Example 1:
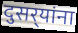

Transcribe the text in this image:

दुसर्‍यांना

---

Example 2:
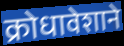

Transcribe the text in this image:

क्रोधावेशाने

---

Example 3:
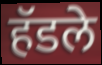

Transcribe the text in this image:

हॅडले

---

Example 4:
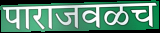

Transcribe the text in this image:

पाराजवळच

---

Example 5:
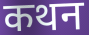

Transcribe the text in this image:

कथन